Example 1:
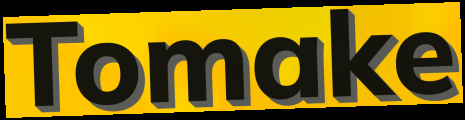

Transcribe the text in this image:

Tomake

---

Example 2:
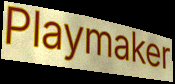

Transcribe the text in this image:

Playmaker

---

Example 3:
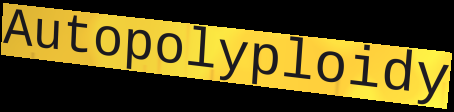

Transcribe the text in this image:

Autopolyploidy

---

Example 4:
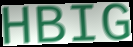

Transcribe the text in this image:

HBIG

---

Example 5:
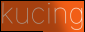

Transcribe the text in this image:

kucing